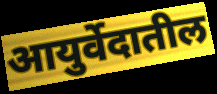
आयुर्वेदातील